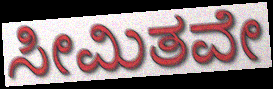
ಸೀಮಿತವೇ